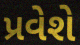
પ્રવેશે